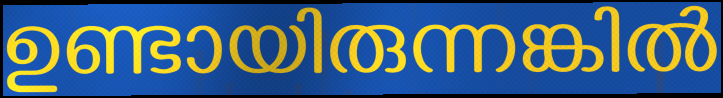
ഉണ്ടായിരുന്നങ്കിൽ